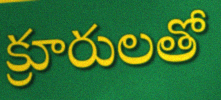
క్రూరులతో